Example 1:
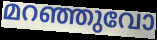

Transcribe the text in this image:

മറഞ്ഞുവോ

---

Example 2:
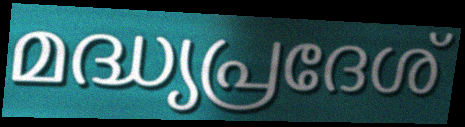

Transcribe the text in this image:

മദ്ധ്യപ്രദേശ്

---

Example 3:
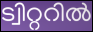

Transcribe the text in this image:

ട്വിറ്ററിൽ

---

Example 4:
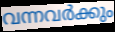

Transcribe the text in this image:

വന്നവർക്കും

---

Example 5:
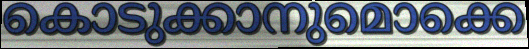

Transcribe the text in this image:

കൊടുക്കാനുമൊക്കെ